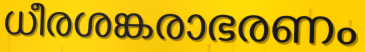
ധീരശങ്കരാഭരണം